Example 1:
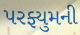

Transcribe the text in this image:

પરફ્યુમની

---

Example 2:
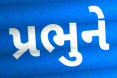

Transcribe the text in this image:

પ્રભુને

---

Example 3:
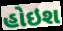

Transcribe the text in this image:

હોઇશ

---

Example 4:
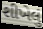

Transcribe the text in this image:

શીખેલું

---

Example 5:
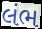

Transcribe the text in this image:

લંભ